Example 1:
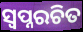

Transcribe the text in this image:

ସ୍ୱପ୍ନରଚିତ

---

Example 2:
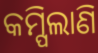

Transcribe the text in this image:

କମ୍ପିଲାଣି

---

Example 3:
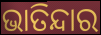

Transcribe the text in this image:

ଭାତିନ୍ଦାର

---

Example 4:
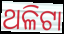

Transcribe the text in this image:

ଥଳିଟା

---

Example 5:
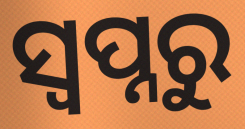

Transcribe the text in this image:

ସ୍ବପ୍ନରୁ